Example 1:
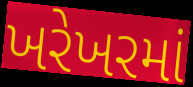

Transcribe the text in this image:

ખરેખરમાં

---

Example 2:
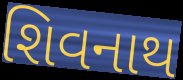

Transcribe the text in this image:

શિવનાથ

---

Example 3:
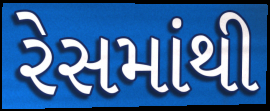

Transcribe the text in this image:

રેસમાંથી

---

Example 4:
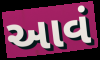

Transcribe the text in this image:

આવં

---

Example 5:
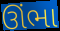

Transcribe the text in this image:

ઊંભા